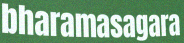
bharamasagara